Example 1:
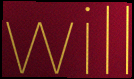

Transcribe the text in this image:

will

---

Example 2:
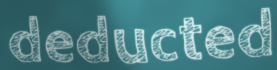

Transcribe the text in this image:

deducted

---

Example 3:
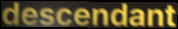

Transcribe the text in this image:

descendant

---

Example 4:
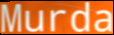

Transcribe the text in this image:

Murda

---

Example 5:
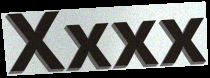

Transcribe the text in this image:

Xxxx